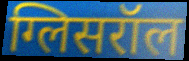
ग्लिसरॉल